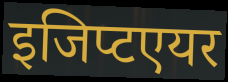
इजिप्टएयर